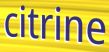
citrine